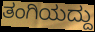
ತಂಗಿಯದ್ದು